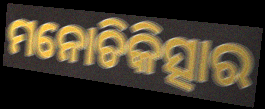
ମନୋଚିକିତ୍ସାର